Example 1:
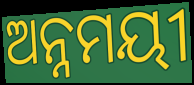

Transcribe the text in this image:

ଅନ୍ନମୟୀ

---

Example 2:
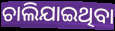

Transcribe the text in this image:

ଚାଲିଯାଇଥିବା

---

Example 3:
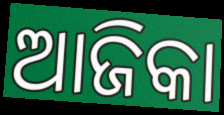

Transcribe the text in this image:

ଆଜିକା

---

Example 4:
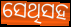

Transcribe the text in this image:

ସେଥିସହ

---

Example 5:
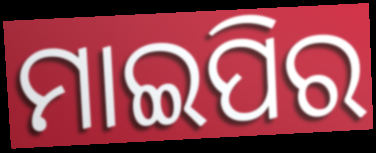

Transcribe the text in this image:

ମାଇପିର